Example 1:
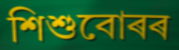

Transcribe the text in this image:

শিশুবোৰৰ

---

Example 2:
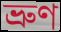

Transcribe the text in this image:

ভ্ৰুণ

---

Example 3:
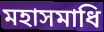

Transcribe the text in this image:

মহাসমাধি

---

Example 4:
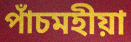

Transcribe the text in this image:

পাঁচমহীয়া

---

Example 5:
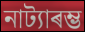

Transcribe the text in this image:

নাট্যাৰম্ভ